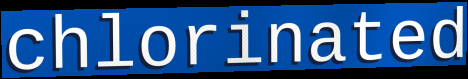
chlorinated